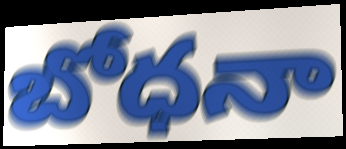
బోధనా